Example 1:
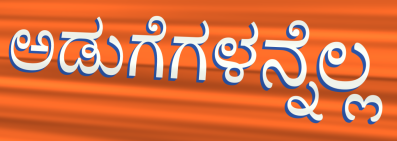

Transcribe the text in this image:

ಅಡುಗೆಗಳನ್ನೆಲ್ಲ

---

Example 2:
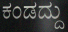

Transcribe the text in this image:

ಕಂಡದ್ದು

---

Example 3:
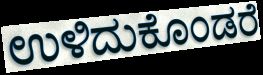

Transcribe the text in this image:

ಉಳಿದುಕೊಂಡರೆ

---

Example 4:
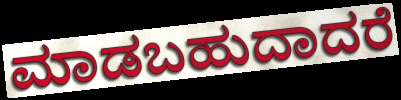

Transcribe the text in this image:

ಮಾಡಬಹುದಾದರೆ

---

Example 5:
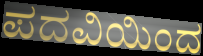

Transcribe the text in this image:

ಪದವಿಯಿಂದ